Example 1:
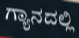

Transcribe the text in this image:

ಗ್ಯಾನದಲ್ಲಿ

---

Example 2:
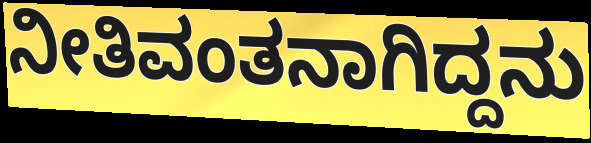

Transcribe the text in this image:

ನೀತಿವಂತನಾಗಿದ್ದನು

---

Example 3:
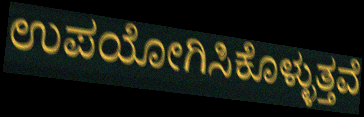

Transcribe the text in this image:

ಉಪಯೋಗಿಸಿಕೊಳ್ಳುತ್ತವೆ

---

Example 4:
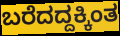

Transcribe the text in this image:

ಬರೆದದ್ದಕ್ಕಿಂತ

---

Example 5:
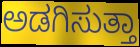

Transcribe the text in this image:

ಅಡಗಿಸುತ್ತಾ